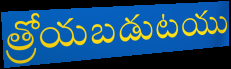
త్రోయబడుటయు